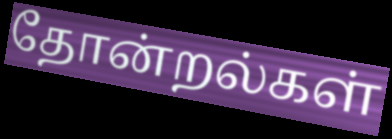
தோன்றல்கள்